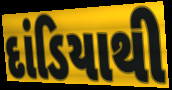
દાંડિયાથી